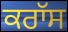
ਕਰਾੱਸ